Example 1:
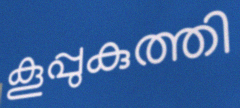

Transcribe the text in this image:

കൂപ്പുകുത്തി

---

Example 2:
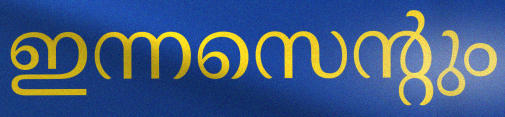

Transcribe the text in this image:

ഇന്നസെന്റും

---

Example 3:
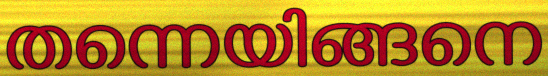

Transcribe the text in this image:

തന്നെയിങ്ങനെ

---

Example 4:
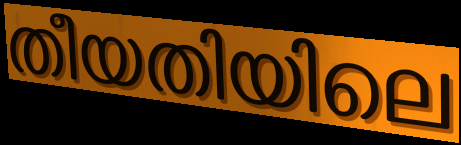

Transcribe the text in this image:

തീയതിയിലെ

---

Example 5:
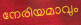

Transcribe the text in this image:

നേരിയമാവും